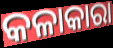
କଳାକାରା